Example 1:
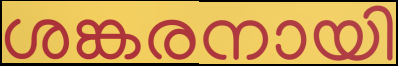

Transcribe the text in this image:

ശങ്കരനായി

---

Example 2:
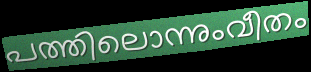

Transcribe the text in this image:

പത്തിലൊന്നുംവീതം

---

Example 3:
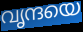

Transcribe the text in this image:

വൃന്ദയെ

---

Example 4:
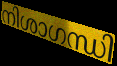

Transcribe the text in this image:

നിശാഗന്ധി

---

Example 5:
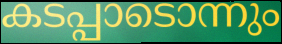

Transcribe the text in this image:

കടപ്പാടൊന്നും